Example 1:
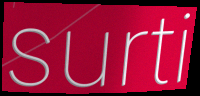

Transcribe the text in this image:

surti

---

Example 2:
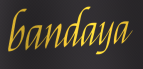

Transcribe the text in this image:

bandaya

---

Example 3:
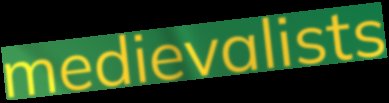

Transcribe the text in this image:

medievalists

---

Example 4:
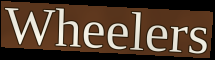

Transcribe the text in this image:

Wheelers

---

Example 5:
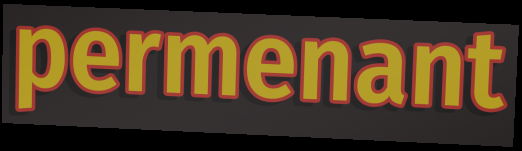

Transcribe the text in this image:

permenant